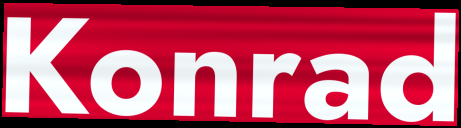
Konrad